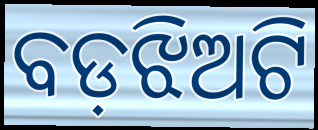
ବଡ଼ଝିଅଟି